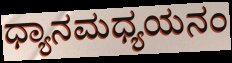
ಧ್ಯಾನಮಧ್ಯಯನಂ